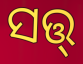
ସତ୍ତ୍